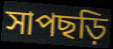
সাপছড়ি